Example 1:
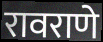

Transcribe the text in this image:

रावराणे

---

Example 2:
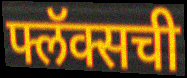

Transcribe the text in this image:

फ्लॅक्सची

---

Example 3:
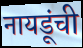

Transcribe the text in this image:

नायडूंची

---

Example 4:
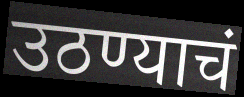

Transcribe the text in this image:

उठण्याचं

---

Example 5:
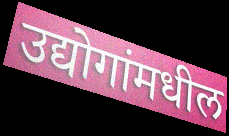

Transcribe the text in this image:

उद्योगांमधील